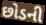
છોડની